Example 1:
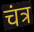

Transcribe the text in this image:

चंत्र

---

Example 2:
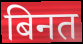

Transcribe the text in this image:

बिनत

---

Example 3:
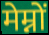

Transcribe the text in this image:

मेम्नों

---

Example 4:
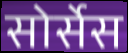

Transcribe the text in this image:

सोर्सेस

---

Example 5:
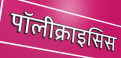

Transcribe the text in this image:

पॉलीक्राइसिस